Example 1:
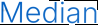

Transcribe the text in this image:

Median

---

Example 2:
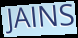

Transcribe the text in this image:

JAINS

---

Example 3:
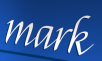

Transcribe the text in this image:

mark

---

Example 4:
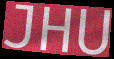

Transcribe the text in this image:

JHU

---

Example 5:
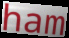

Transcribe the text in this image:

ham